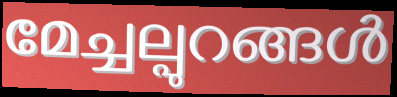
മേച്ചല്പുറങ്ങൾ